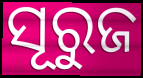
ସୂରୁଜ